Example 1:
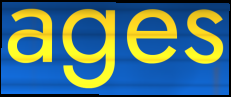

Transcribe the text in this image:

ages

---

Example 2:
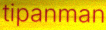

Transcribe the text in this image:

tipanman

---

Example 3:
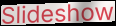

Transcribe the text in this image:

Slideshow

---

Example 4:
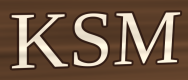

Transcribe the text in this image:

KSM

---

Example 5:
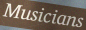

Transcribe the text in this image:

Musicians